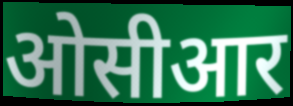
ओसीआर